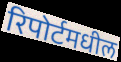
रिपोर्टमधील